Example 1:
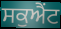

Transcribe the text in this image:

ਸਕੁਐਂਟ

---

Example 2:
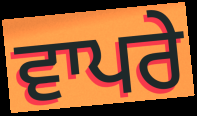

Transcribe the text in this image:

ਵਾਪਰੇ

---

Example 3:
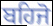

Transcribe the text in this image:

ਬਹਿਜੋ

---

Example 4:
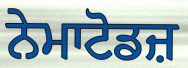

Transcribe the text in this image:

ਨੇਮਾਟੋਡਜ਼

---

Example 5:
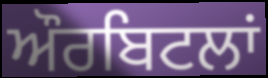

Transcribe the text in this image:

ਔਰਬਿਟਲਾਂ